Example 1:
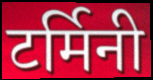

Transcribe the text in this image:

टर्मिनी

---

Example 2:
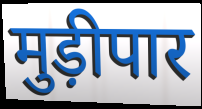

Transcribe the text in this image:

मुड़ीपार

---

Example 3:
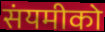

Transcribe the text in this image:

संयमीको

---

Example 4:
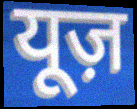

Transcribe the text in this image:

यूज़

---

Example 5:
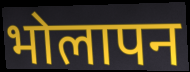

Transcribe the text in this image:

भोलापन